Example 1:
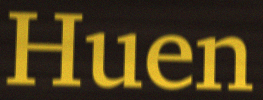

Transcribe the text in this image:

Huen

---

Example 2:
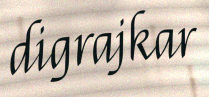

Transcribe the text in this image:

digrajkar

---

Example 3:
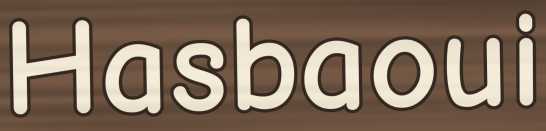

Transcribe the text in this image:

Hasbaoui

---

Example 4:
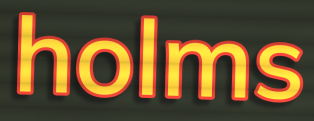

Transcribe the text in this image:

holms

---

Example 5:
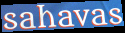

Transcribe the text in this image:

sahavas